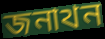
জনাথন